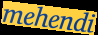
mehendi